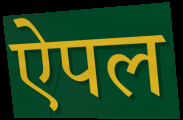
ऐपल